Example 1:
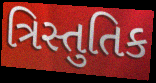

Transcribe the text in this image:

ત્રિસ્તુતિક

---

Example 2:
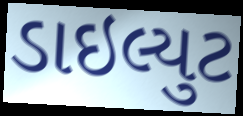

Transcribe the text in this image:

ડાઇલ્યુટ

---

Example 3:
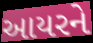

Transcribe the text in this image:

આયરને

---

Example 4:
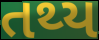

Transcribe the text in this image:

તથ્ય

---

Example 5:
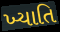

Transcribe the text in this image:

ખ્યાતિ